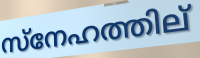
സ്നേഹത്തില്